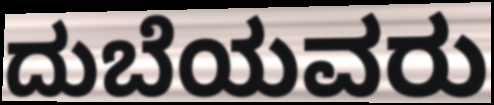
ದುಬೆಯವರು